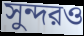
সুন্দরও